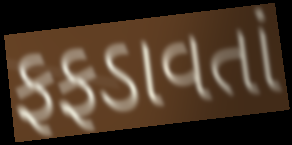
ફફડાવતાં